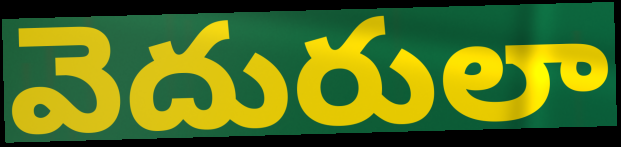
వెదురులా